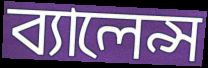
ব্যালেন্স